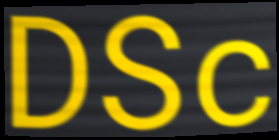
DSc